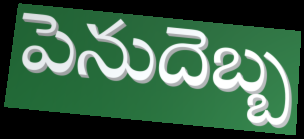
పెనుదెబ్బ